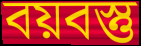
বয়বস্তু